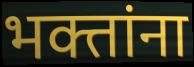
भक्तांना